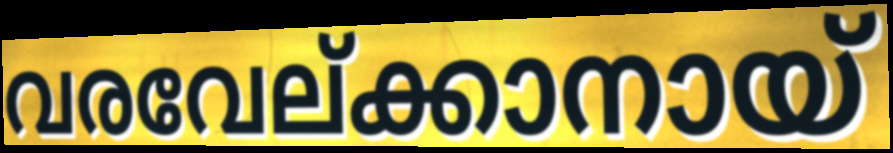
വരവേല്ക്കാനായ്